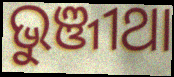
ଭୁଞ୍ଜୀଥା